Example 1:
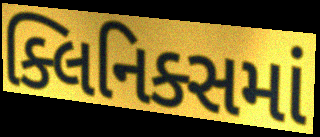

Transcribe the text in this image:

ક્લિનિક્સમાં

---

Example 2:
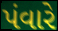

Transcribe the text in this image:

પંવારે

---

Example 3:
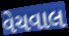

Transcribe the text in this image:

વેચવાલ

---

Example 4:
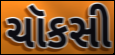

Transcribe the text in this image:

ચૉકસી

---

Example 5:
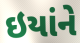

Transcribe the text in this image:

ઇયાંને